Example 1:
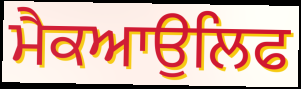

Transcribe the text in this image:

ਮੈਕਆਉਲਿਫ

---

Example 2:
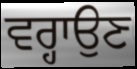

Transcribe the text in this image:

ਵਰ੍ਹਾਉਣ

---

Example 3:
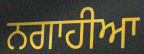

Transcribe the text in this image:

ਨਗਾਹੀਆ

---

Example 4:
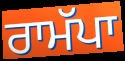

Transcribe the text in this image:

ਰਾਮੱਪਾ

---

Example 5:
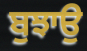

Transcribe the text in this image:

ਬੁਝਾਉ